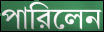
পারিলেন